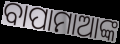
ବାପାମାଆଙ୍କ